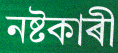
নষ্টকাৰী